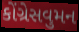
કોંગ્રેસવુમન